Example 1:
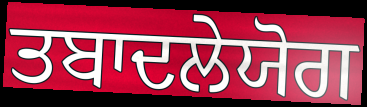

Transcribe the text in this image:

ਤਬਾਦਲੇਯੋਗ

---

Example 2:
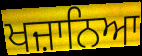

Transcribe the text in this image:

ਖਜ਼ਾਨਿਆ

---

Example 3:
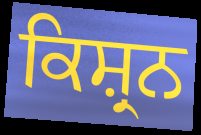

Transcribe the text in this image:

ਕਿਸ਼੍ਰਨ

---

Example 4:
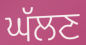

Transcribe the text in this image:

ਘੱਲਣ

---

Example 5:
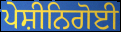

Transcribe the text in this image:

ਪੇਸ਼ੀਨਿਗੋਈ